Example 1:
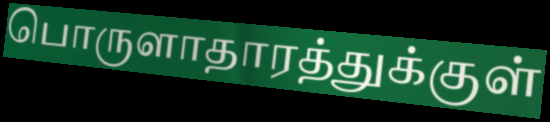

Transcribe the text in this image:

பொருளாதாரத்துக்குள்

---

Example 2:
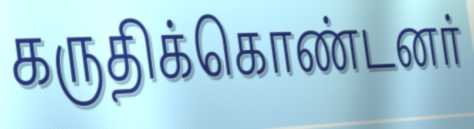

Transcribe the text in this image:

கருதிக்கொண்டனர்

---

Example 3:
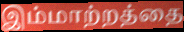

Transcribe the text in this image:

இம்மாற்றத்தை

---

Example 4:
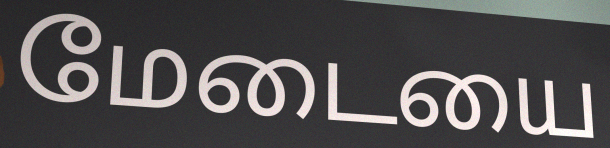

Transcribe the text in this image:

மேடையை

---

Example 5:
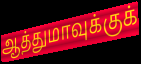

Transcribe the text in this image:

ஆத்துமாவுக்குக்